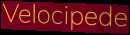
Velocipede